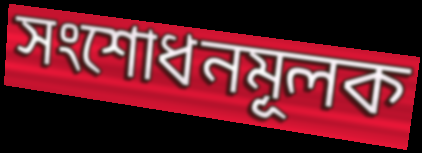
সংশোধনমূলক